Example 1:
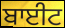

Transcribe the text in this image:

ਬਾਈਟ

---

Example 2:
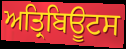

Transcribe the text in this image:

ਅਤ੍ਰਿਬਿਊਟਸ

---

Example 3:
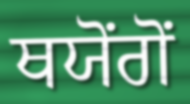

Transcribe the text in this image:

ਥਯੋਂਗੋਂ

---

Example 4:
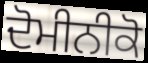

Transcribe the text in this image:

ਦੋਮੀਨੀਕੋ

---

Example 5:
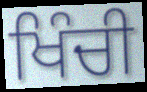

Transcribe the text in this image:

ਖਿੰਚੀ